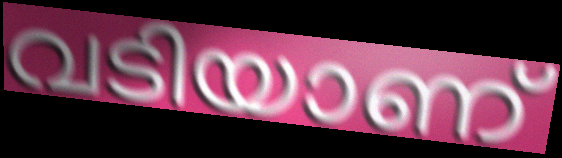
വടിയാണ്